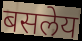
बसलेय